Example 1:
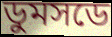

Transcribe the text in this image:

ডুমসডে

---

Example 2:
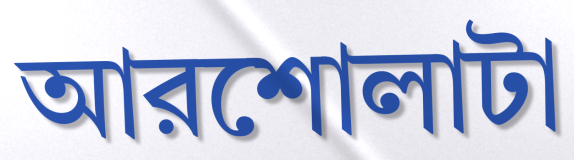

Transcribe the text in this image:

আরশোলাটা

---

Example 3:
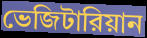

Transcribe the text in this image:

ভেজিটারিয়ান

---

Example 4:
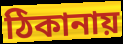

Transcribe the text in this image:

ঠিকানায়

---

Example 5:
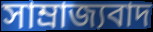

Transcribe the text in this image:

সাম্রাজ্যবাদ